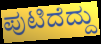
ಪುಟಿದೆದ್ದು